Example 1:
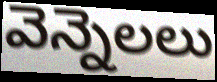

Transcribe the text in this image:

వెన్నెలలు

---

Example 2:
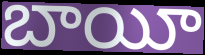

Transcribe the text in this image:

బాయీ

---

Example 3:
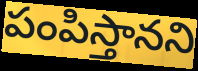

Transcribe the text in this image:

పంపిస్తానని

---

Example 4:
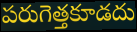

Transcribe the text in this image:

పరుగెత్తకూడదు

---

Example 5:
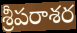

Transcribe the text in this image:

శ్రీపరాశర